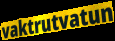
vaktrutvatun